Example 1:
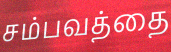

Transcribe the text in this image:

சம்பவத்தை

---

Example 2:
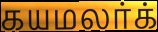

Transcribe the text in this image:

கயமலர்க்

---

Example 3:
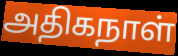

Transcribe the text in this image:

அதிகநாள்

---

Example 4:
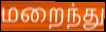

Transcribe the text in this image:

மறைந்து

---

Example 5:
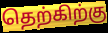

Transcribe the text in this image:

தெற்கிற்கு